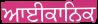
ਆਈਕਾਨਿਕ